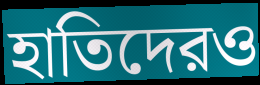
হাতিদেরও